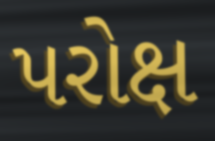
પરોક્ષ